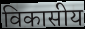
विकासीय